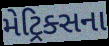
મેટ્રિક્સના